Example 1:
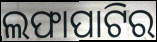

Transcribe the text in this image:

ଲଫାପାଟିର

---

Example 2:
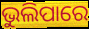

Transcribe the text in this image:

ଭୁଲିପାରେ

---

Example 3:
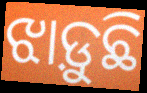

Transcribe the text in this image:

ଝାଡ଼ୁଛି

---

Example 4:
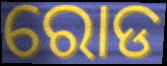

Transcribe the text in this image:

ରୋଡ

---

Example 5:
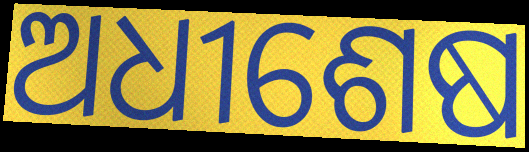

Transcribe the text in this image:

ଅଧୀଶେଷ